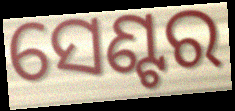
ସେଣ୍ଟର